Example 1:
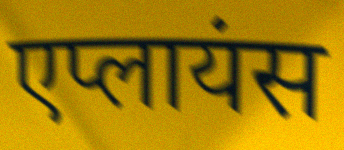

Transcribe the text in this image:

एप्लायंस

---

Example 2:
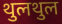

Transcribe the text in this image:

थुलथुल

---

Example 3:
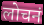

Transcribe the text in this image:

लोचनं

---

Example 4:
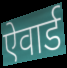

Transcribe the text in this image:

ऐवार्ड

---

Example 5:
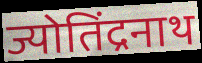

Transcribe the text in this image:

ज्योतिंद्रनाथ